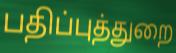
பதிப்புத்துறை